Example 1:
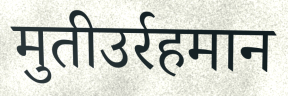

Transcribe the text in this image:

मुतीउर्रहमान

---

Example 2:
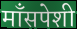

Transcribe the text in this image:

माँसपेशी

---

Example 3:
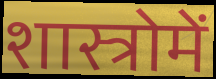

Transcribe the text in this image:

शास्त्रोमें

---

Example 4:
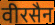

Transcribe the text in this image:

वीरसैन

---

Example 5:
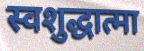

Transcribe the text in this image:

स्वशुद्धात्मा